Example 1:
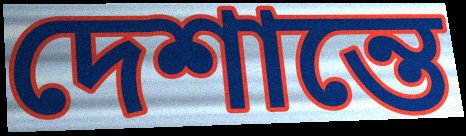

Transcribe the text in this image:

দেশান্তে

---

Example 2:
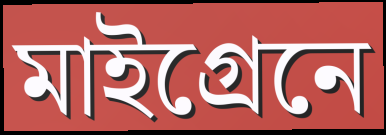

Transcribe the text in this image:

মাইগ্রেনে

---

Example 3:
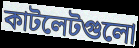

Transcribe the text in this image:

কাটলেটগুলো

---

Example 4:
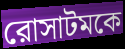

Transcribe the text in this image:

রোসাটমকে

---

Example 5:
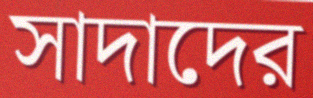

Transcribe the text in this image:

সাদাদের